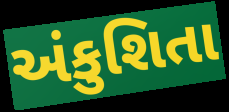
અંકુશિતા